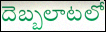
దెబ్బలాటలో